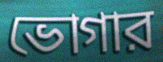
ভোগার